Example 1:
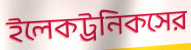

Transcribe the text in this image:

ইলেকট্রনিকসের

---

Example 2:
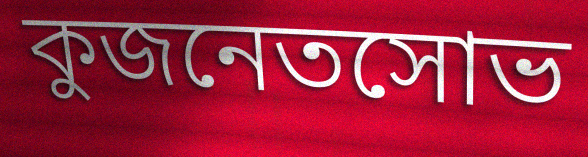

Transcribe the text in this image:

কুজনেতসোভ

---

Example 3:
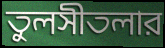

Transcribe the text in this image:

তুলসীতলার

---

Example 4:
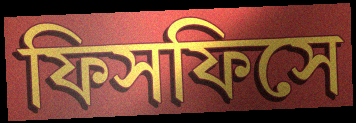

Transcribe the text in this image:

ফিসফিসে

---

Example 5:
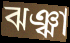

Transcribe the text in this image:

ঝঞ্ঝা